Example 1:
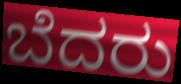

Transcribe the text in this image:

ಬೆದರು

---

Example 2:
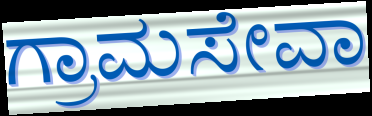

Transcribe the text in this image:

ಗ್ರಾಮಸೇವಾ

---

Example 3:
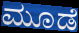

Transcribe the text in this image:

ಮೂಡೆ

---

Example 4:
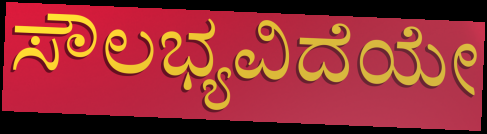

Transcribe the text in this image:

ಸೌಲಭ್ಯವಿದೆಯೇ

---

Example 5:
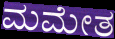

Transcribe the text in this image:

ಮಮೇತ